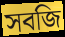
সবজি